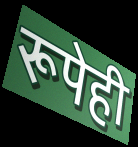
रूपेही